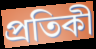
প্ৰতিকী